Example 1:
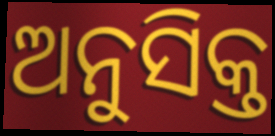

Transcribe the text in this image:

ଅନୁସିକ୍ତ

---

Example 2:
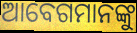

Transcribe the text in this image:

ଆବେଗମାନଙ୍କୁ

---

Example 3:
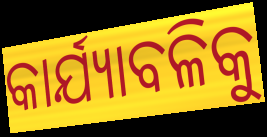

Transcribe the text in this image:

କାର୍ଯ୍ୟାବଳିକୁ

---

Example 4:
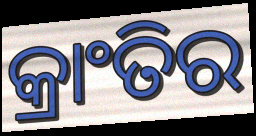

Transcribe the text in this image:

କ୍ରାଂତିର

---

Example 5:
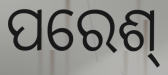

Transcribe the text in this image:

ପରେଶ୍